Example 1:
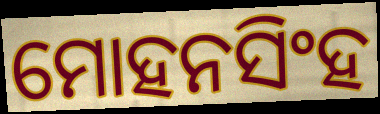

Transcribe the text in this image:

ମୋହନସିଂହ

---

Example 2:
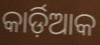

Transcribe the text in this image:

କାର୍ଡ଼ିଆକ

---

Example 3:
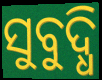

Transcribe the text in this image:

ସୁବୁଦ୍ଧି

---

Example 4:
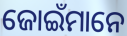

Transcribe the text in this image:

ଜୋଇଁମାନେ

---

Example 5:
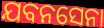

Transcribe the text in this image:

ଯବନସେନା